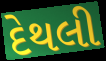
દેથલી